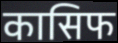
कासिफ